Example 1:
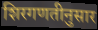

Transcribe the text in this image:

शिरगणतीनुसार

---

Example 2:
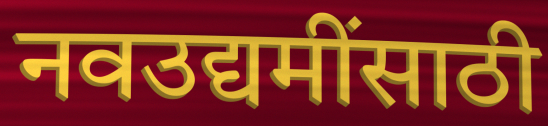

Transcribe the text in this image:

नवउद्यमींसाठी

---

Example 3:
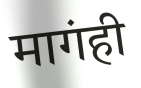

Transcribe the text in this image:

मागंही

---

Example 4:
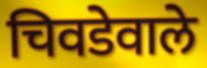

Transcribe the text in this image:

चिवडेवाले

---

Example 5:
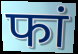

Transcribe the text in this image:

फां